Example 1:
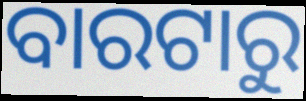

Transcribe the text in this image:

ବାରଟାରୁ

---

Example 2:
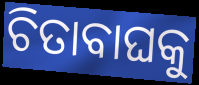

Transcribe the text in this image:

ଚିତାବାଘକୁ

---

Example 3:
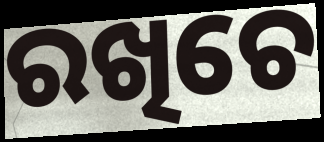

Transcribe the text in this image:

ରଖିଚେ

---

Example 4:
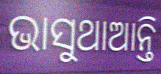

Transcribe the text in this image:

ଭାସୁଥାଆନ୍ତି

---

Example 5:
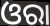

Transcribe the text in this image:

ଓରା